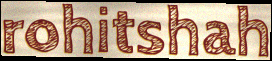
rohitshah